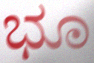
ಭೂ